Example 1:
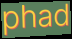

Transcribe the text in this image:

phad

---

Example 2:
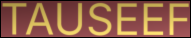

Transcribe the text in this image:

TAUSEEF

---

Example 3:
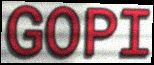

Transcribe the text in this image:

GOPI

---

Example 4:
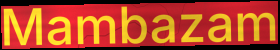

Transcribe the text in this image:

Mambazam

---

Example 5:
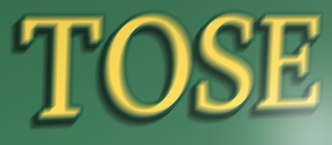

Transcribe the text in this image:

TOSE